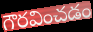
గౌరవించడం